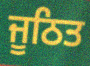
ਜੂਠਿਤ